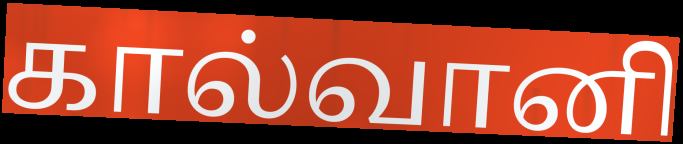
கால்வானி